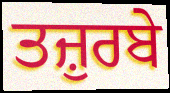
ਤਜ਼ੁਰਬੇ